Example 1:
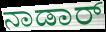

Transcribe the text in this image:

ನಾಡಾರ್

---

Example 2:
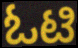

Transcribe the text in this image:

ಓಟಿ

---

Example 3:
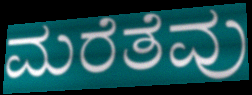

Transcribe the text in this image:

ಮರೆತೆವು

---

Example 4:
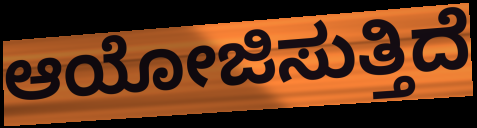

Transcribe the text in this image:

ಆಯೋಜಿಸುತ್ತಿದೆ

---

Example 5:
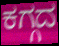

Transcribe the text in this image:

ಕಗ್ಗದ